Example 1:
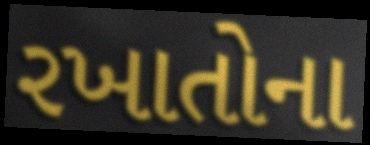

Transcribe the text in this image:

રખાતોના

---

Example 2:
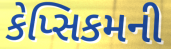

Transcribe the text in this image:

કેપ્સિકમની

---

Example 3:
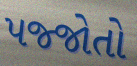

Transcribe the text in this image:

પજ્જોતો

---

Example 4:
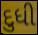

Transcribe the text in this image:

દુધી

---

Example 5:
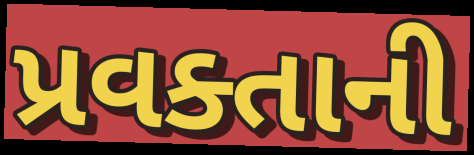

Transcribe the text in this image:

પ્રવક્તાની